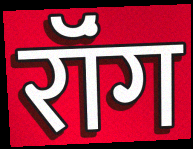
रॉंग